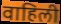
वाहिली